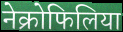
नेक्रोफिलिया